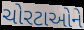
ચોરટાઓને